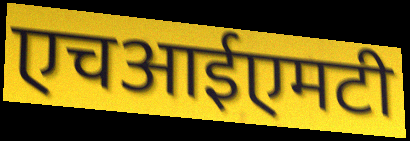
एचआईएमटी